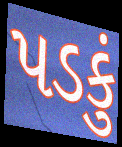
પડકું